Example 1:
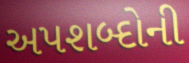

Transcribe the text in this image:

અપશબ્દોની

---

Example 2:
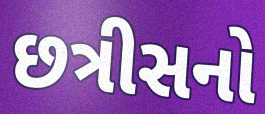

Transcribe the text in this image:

છત્રીસનો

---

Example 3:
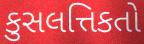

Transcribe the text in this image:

કુસલત્તિકતો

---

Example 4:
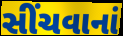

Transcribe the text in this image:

સીંચવાનાં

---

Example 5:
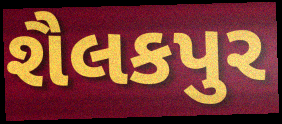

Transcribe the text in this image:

શૈલકપુર